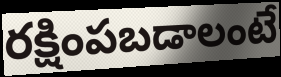
రక్షింపబడాలంటే